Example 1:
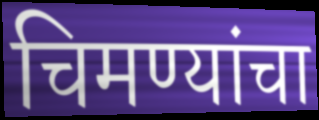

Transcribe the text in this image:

चिमण्यांचा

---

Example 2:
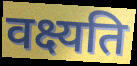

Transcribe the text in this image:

वक्ष्यति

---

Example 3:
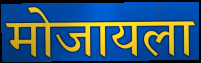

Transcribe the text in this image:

मोजायला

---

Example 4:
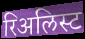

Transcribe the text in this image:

रिअलिस्ट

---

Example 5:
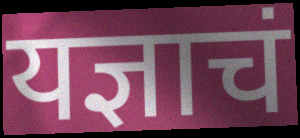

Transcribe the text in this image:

यज्ञाचं